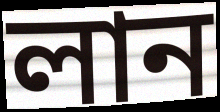
লান